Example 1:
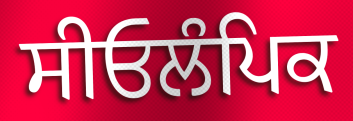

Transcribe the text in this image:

ਸੀਓਲੰਪਿਕ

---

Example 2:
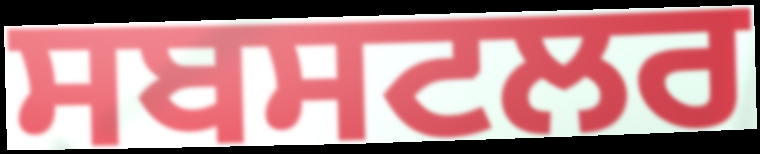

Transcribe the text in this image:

ਸਬਸਟਲਰ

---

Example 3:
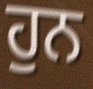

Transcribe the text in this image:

ਹੁਨ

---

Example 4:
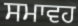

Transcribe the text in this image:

ਸਮਾਵਹ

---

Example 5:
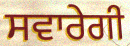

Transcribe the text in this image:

ਸਵਾਰੇਗੀ